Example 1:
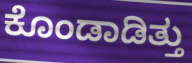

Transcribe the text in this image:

ಕೊಂಡಾಡಿತ್ತು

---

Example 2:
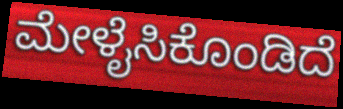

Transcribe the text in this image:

ಮೇಳೈಸಿಕೊಂಡಿದೆ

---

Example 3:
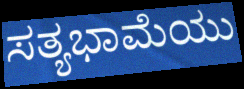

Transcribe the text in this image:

ಸತ್ಯಭಾಮೆಯು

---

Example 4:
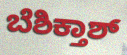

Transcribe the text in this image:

ಬೆಶಿಕ್ತಾಶ್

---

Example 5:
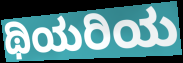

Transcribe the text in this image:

ಥಿಯರಿಯ